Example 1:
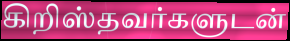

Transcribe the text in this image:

கிறிஸ்தவர்களுடன்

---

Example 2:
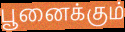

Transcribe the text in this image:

பூனைக்கும்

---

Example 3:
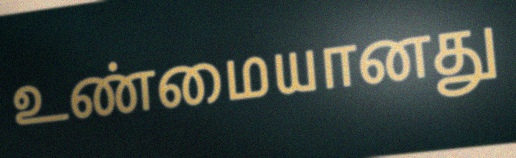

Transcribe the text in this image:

உண்மையானது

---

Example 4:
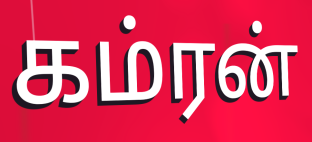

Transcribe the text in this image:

கம்ரன்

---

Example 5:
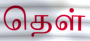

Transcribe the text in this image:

தெள்